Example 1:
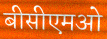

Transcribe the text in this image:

बीसीएमओ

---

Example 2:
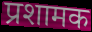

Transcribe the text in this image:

प्रशामक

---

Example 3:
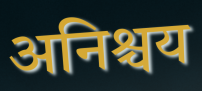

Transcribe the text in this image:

अनिश्चय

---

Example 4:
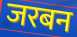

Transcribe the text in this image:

जरबन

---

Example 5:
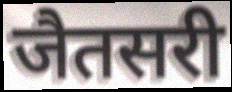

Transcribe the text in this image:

जैतसरी